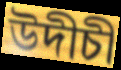
উদীচী